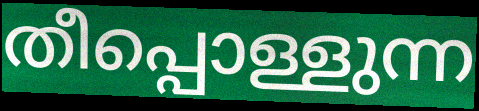
തീപ്പൊള്ളുന്ന